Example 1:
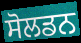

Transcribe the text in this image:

ਸੋਲਡਨ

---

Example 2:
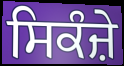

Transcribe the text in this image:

ਸਿਕੰਜ਼ੇ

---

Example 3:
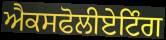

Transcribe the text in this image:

ਐਕਸਫੋਲੀਏਟਿੰਗ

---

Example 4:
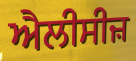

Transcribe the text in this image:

ਐਲੀਸੀਜ਼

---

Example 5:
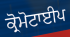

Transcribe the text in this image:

ਕ੍ਰੋਮੋਟਾਈਪ